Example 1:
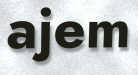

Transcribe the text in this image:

ajem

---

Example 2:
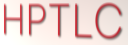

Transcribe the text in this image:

HPTLC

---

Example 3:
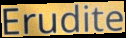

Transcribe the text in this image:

Erudite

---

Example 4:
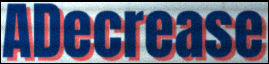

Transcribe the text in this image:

ADecrease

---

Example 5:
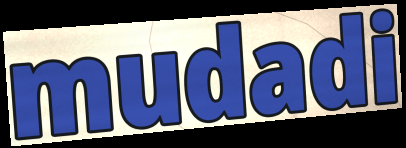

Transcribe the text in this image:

mudadi